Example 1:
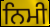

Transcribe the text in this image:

ਨਿਮੀ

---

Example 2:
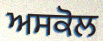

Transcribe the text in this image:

ਅਸਕੋਲ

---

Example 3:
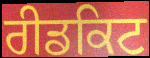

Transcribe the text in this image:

ਰੀਡਕਿਟ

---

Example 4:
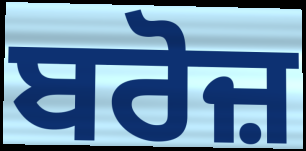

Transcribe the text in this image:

ਬਰੋਜ਼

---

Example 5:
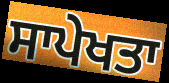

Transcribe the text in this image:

ਸਾਪੇਖਤਾ